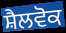
ਸ਼ੈਲਵੋਕ